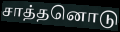
சாத்தனொடு